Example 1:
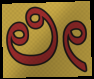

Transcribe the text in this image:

ಲೀ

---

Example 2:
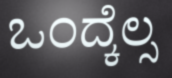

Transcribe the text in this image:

ಒಂದ್ಕೆಲ್ಸ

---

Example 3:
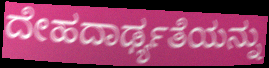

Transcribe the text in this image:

ದೇಹದಾರ್ಢ್ಯತೆಯನ್ನು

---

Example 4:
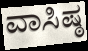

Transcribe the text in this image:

ವಾಸಿಷ್ಠ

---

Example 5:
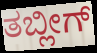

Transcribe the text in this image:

ತಬ್ಲೀಗ್